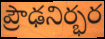
ప్రౌఢనిర్భర